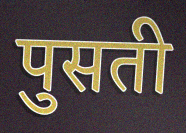
पुसती